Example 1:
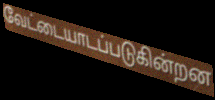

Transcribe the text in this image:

வேட்டையாடப்படுகின்றன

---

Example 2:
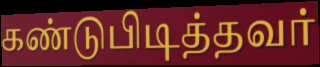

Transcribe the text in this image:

கண்டுபிடித்தவர்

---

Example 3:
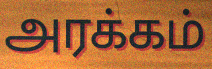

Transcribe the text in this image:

அரக்கம்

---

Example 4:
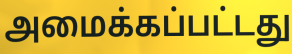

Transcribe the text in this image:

அமைக்கப்பட்டது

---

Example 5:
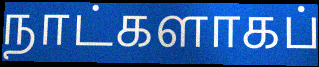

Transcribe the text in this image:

நாட்களாகப்